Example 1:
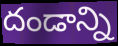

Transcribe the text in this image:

దండాన్ని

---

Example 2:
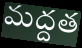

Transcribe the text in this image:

మద్దత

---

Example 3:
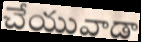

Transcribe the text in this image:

చేయువాడా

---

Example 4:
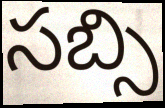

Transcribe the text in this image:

సబ్సి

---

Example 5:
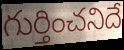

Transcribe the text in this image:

గుర్తించనిదే